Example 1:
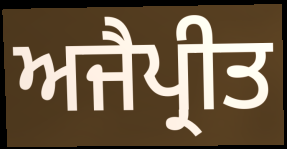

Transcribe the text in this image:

ਅਜੈਪ੍ਰੀਤ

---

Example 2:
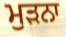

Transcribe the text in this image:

ਮੁੜਨਾ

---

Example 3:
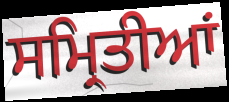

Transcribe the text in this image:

ਸਮ੍ਰਿਤੀਆਂ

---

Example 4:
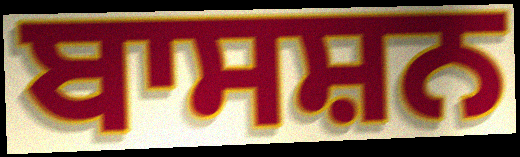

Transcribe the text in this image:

ਬਾਸਸ਼ਨ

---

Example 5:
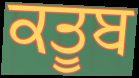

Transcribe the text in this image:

ਕਤੂਬ